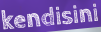
kendisini